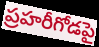
ప్రహరీగోడపై